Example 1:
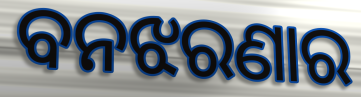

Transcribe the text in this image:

ବନଝରଣାର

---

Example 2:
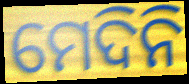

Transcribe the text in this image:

ମେଦିନି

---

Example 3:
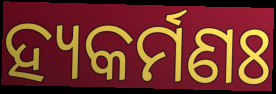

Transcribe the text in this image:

ହ୍ୟକର୍ମଣଃ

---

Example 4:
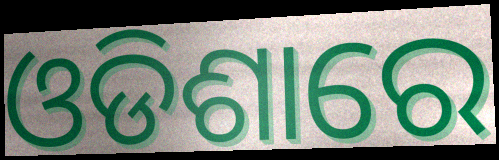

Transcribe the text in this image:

ଓଡିଶାରେ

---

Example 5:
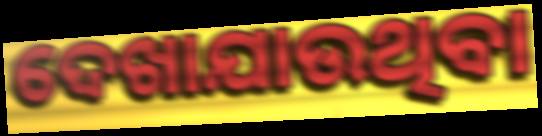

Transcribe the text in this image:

ଦେଖାଯାଉଥିବା